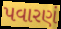
પવારણં